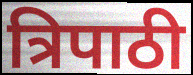
त्रिपाठी